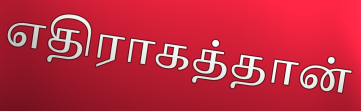
எதிராகத்தான்